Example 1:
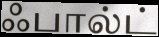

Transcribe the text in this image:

ஃபால்ட்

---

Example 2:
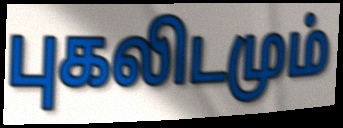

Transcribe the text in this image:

புகலிடமும்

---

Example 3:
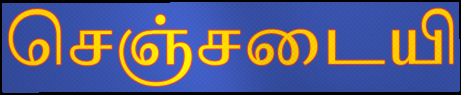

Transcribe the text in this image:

செஞ்சடையி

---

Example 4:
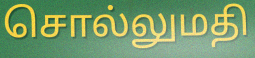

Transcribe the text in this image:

சொல்லுமதி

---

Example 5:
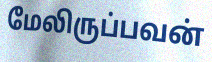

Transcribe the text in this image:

மேலிருப்பவன்